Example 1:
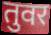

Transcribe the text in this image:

तुवर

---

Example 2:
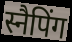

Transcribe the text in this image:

स्नैपिंग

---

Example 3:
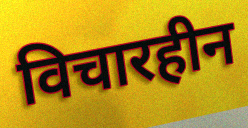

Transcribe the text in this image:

विचारहीन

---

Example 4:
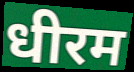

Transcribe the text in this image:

धीरम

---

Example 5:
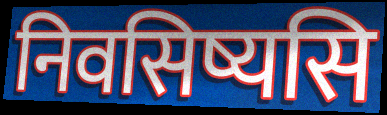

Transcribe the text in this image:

निवसिष्यसि